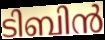
ടിബിൻ